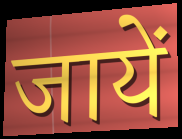
जायें